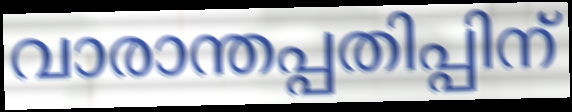
വാരാന്തപ്പതിപ്പിന്